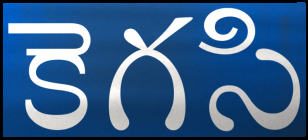
కెగసి